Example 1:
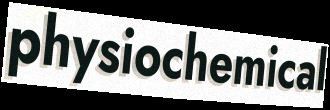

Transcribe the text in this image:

physiochemical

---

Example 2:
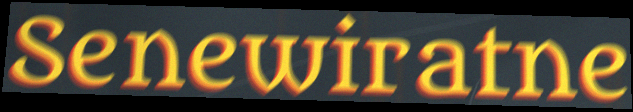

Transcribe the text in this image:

Senewiratne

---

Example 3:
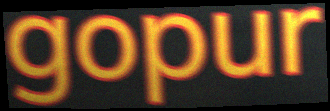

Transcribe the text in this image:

gopur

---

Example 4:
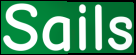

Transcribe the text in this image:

Sails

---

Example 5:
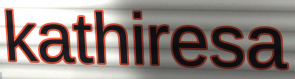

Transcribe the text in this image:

kathiresa